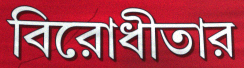
বিরোধীতার